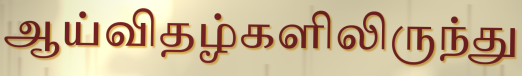
ஆய்விதழ்களிலிருந்து